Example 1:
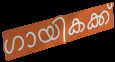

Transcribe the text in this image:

ഗായികക്ക്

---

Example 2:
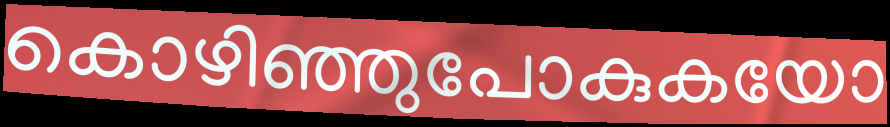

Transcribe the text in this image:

കൊഴിഞ്ഞുപോകുകയോ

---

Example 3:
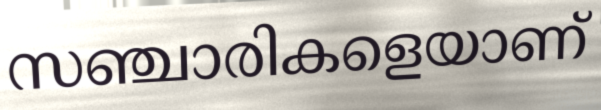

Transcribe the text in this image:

സഞ്ചാരികളെയാണ്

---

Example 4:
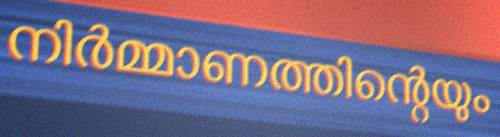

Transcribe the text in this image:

നിർമ്മാണത്തിന്റെയും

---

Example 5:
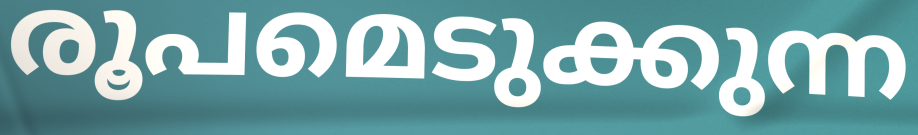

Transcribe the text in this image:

രൂപമെടുക്കുന്ന